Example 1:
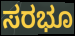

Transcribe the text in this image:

ಸರಭೂ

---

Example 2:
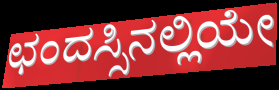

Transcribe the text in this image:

ಛಂದಸ್ಸಿನಲ್ಲಿಯೇ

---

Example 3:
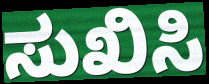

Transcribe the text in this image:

ಸುಖಿಸಿ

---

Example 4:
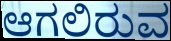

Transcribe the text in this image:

ಆಗಲಿರುವ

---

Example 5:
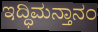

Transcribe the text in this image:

ಇದ್ಧಿಮನ್ತಾನಂ